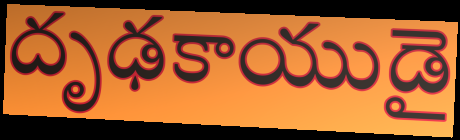
దృఢకాయుడై